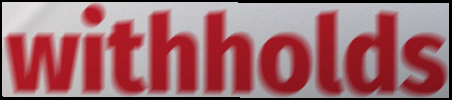
withholds